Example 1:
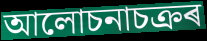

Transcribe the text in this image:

আলোচনাচক্ৰৰ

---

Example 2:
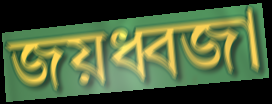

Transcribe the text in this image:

জয়ধ্বজা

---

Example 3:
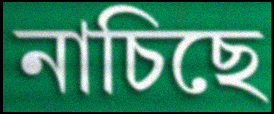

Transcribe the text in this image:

নাচিছে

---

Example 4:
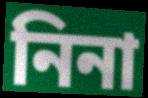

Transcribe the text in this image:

নিনা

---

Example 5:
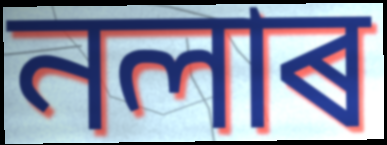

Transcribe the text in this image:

নলাৰ